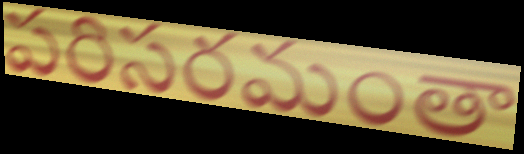
పరిసరమంతా